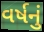
વર્ષનું